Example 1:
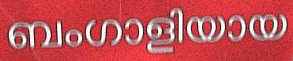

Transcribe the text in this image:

ബംഗാളിയായ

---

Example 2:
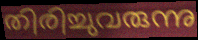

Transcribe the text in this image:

തിരിച്ചുവരുന്നു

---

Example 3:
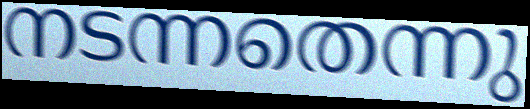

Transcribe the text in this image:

നടന്നതെന്നു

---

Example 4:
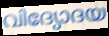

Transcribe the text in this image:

വിദ്യോദയ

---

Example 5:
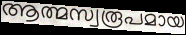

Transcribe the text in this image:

ആത്മസ്വരൂപമായ